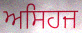
ਅਸਿਹਜ